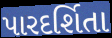
પારદર્શિતા